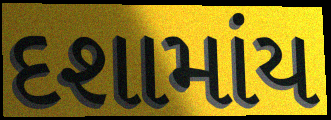
દશામાંય